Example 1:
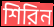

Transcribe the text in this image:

শিরিন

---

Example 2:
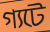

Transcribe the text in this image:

গ্যটে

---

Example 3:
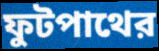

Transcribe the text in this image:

ফুটপাথের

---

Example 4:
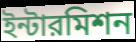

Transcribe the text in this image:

ইন্টারমিশন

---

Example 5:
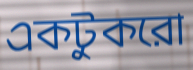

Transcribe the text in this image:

একটুকরো